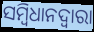
ସମ୍ବିଧାନଦ୍ବାରା